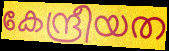
കേന്ദ്രീയത